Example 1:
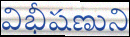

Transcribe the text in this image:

విభీషణుని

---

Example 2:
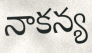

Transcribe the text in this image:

నాకన్య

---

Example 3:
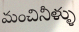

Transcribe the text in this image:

మంచినీళ్ళు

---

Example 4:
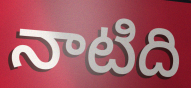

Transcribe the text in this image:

నాటిది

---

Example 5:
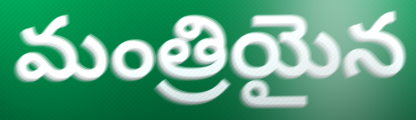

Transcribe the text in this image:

మంత్రియైన